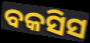
ବକସିସ